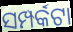
ସମ୍ପର୍କଟା